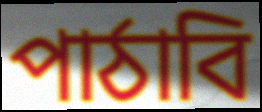
পাঠাবি